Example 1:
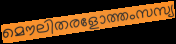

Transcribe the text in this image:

മൌലിതരളോത്തംസസ്യ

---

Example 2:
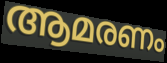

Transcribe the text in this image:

ആമരണം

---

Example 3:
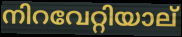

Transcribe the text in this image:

നിറവേറ്റിയാല്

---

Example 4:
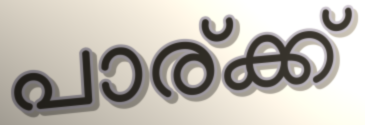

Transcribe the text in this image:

പാര്ക്ക്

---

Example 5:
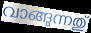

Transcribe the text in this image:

വാങ്ങുന്നതു്